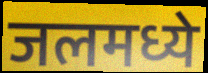
जलमध्ये